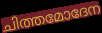
ചിത്തമോദേന